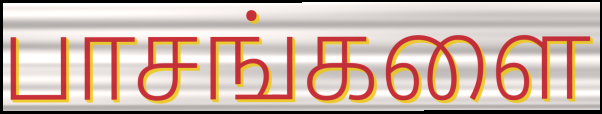
பாசங்களை